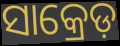
ସାକ୍ରେଡ଼